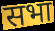
सभा